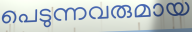
പെടുന്നവരുമായ